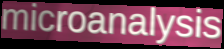
microanalysis